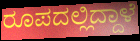
ರೂಪದಲ್ಲಿದ್ದಾಳೆ